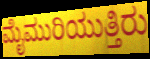
ಮೈಮುರಿಯುತ್ತಿರು